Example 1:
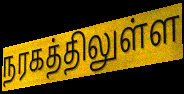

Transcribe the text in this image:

நரகத்திலுள்ள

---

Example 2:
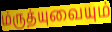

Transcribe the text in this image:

ம்ருத்யுவையும்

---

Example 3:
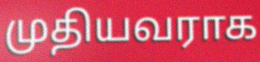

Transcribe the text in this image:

முதியவராக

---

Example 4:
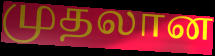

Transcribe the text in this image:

முதலான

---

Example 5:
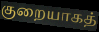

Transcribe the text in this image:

குறையாகத்